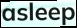
asleep